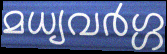
മധ്യവർഗ്ഗ